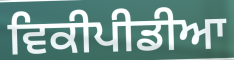
ਵਿਕੀਪੀਡੀਆ